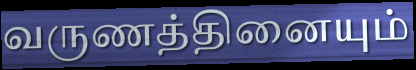
வருணத்தினையும்